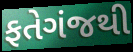
ફતેગંજથી